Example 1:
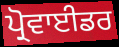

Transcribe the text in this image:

ਪ੍ਰੋਵਾਈਡਰ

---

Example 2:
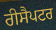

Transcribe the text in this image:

ਰੀਸੈਪਟਰ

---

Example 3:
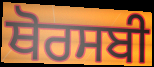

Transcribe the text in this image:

ਥੋਰਸਬੀ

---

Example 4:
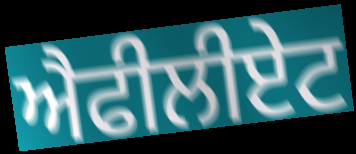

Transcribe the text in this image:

ਐਫੀਲੀਏਟ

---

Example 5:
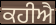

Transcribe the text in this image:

ਕਹੀਐ